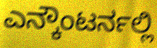
ಎನ್ಕೌಂಟರ್ನಲ್ಲಿ